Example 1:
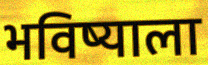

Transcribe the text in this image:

भविष्याला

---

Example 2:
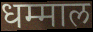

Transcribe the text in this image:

धम्माल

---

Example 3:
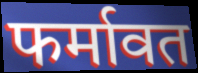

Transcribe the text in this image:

फर्मावत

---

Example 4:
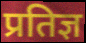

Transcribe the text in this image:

प्रतिज्ञ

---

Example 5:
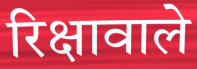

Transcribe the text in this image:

रिक्षावाले